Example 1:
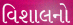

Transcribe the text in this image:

વિશાલનો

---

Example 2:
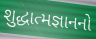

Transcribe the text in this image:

શુદ્ધાત્મજ્ઞાનનો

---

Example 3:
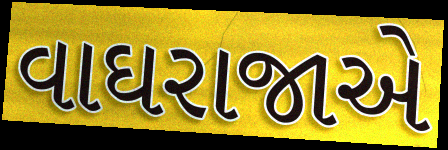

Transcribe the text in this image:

વાઘરાજાએ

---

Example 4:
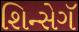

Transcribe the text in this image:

શિન્સેગૅ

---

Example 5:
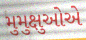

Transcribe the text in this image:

મુમુક્ષુઓએ